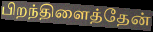
பிறந்திளைத்தேன்